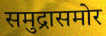
समुद्रासमोर